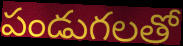
పండుగలతో